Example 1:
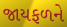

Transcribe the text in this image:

જાયફળને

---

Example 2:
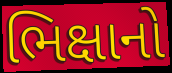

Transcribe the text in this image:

ભિક્ષાનો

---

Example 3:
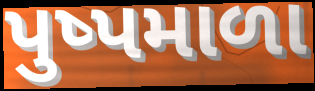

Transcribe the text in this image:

પુષ્પમાળા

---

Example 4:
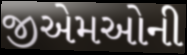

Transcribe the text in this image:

જીએમઓની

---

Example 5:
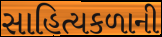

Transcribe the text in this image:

સાહિત્યકળાની